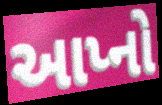
આપ્નો